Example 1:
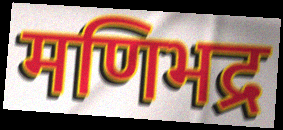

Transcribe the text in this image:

मणिभद्र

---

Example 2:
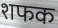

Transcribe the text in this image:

शफक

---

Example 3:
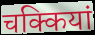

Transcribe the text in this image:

चक्कियां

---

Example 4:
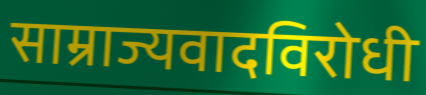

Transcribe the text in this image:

साम्राज्यवादविरोधी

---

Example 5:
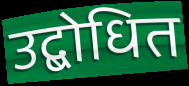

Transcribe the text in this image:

उद्बोधित